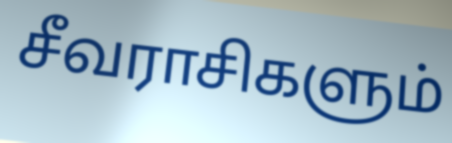
சீவராசிகளும்